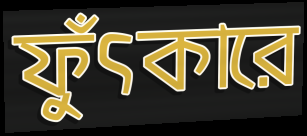
ফুঁৎকারে